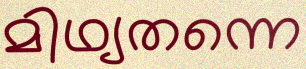
മിഥ്യതന്നെ